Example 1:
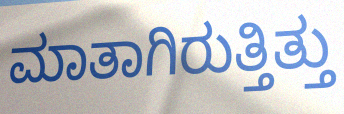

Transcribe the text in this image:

ಮಾತಾಗಿರುತ್ತಿತ್ತು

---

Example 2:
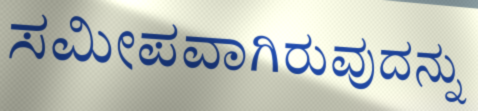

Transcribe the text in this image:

ಸಮೀಪವಾಗಿರುವುದನ್ನು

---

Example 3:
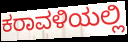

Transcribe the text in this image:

ಕರಾವಳಿಯಲ್ಲಿ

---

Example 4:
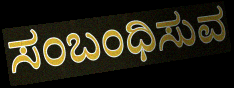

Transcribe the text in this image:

ಸಂಬಂಧಿಸುವ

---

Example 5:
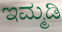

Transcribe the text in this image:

ಇಮ್ಮಡಿ